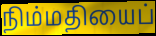
நிம்மதியைப்